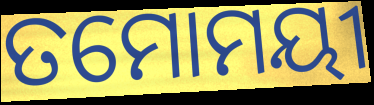
ତମୋମୟୀ